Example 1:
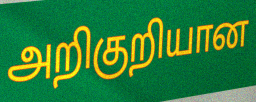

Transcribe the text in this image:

அறிகுறியான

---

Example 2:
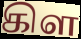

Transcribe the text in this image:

கிள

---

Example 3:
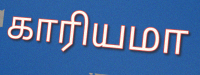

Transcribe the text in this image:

காரியமா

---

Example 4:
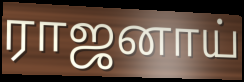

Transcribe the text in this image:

ராஜனாய்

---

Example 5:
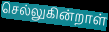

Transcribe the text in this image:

செல்லுகின்றாள்